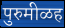
पुरुमीळह